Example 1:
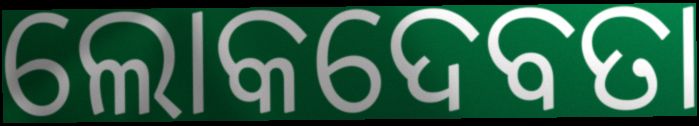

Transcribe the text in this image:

ଲୋକଦେବତା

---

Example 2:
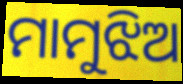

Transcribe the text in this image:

ମାମୁଝିଅ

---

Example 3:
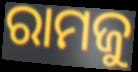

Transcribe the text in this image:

ରାମଜୁ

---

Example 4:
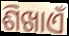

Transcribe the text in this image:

ଶିଖାଏଁ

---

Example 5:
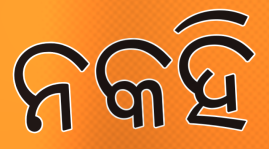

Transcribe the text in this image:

ନକହି